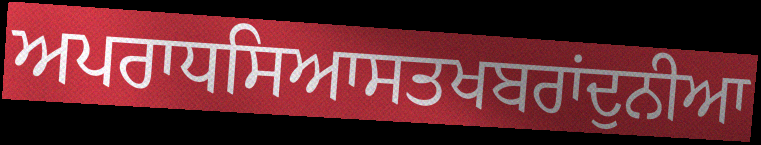
ਅਪਰਾਧਸਿਆਸਤਖਬਰਾਂਦੁਨੀਆ